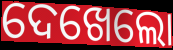
ଦେଖେଲୋ